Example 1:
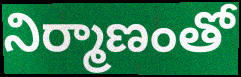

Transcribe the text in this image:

నిర్మాణంతో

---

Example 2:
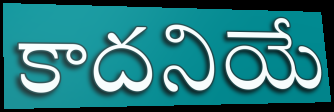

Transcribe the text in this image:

కాదనియే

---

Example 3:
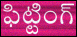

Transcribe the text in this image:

ఫిట్టింగ్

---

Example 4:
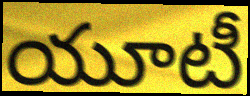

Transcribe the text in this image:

యూటీ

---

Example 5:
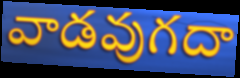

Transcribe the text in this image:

వాడవుగదా